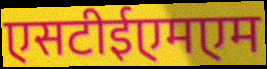
एसटीईएमएम